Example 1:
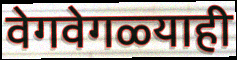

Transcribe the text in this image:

वेगवेगळ्याही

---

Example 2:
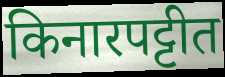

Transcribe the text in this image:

किनारपट्टीत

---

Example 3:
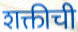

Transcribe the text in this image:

शक्तीची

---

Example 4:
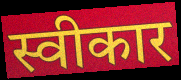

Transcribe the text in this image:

स्वीकार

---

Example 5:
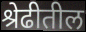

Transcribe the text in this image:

श्रेढीतील